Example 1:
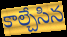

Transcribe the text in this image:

కాల్చేసిన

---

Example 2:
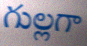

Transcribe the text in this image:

గుల్లగా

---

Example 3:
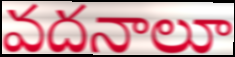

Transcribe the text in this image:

వదనాలూ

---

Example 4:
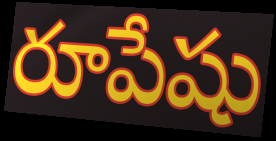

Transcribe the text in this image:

రూపేషు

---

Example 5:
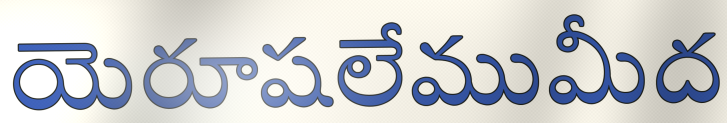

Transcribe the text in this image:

యెరూషలేముమీద